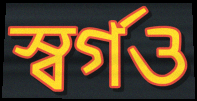
স্বর্গও